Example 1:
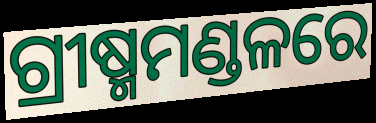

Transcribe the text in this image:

ଗ୍ରୀଷ୍ମମଣ୍ଡଳରେ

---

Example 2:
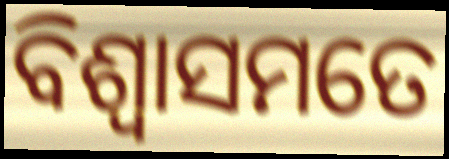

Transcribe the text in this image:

ବିଶ୍ୱାସମତେ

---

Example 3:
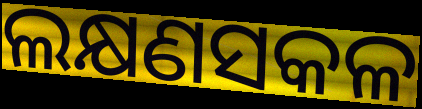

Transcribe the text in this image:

ଲକ୍ଷଣସକଳ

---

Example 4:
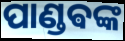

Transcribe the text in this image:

ପାଣ୍ଡଵଙ୍କ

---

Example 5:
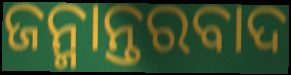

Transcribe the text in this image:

ଜନ୍ମାନ୍ତରବାଦ